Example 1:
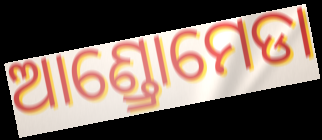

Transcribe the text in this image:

ଆଣ୍ଡ୍ରୋମେଡା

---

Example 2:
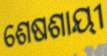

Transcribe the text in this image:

ଶେଷଶାୟୀ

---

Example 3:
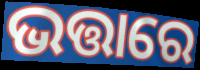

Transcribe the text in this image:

ଭତ୍ତାରେ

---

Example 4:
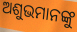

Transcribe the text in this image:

ଅଶୁଭମାନଙ୍କୁ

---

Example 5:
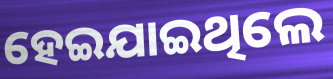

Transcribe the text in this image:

ହେଇଯାଇଥିଲେ